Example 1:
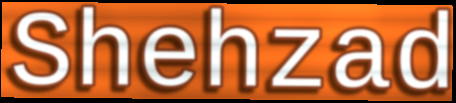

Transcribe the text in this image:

Shehzad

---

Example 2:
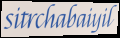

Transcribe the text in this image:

sitrchabaiyil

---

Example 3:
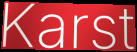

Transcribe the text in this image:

Karst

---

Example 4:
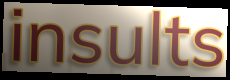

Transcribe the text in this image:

insults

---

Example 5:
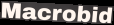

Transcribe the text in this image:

Macrobid